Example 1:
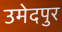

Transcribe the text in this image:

उमेदपुर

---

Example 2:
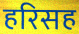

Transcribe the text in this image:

हरिसह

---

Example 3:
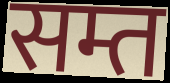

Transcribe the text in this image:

सम्त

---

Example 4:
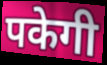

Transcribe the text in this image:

पकेगी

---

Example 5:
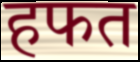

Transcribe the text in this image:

हफत